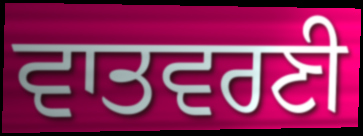
ਵਾਤਵਰਣੀ